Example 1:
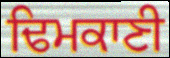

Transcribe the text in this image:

ਢਿਮਕਾਣੀ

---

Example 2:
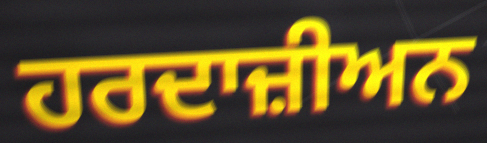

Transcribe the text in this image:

ਹਰਦਾਜ਼ੀਅਨ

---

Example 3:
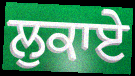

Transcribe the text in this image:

ਲੁਕਾਏ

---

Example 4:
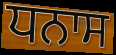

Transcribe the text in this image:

ਧਨਾਸ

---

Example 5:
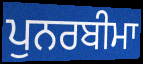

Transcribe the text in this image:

ਪੁਨਰਬੀਮਾ